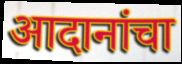
आदानांचा